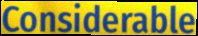
Considerable